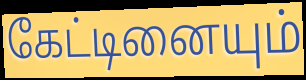
கேட்டினையும்